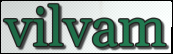
vilvam